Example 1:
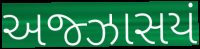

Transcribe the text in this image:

અજ્ઝાસયં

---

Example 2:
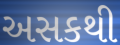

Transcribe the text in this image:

અસકથી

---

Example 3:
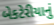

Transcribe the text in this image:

બેકટેરીયાનું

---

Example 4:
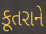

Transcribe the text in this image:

કૂતરાને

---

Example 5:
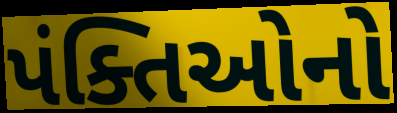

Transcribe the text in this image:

પંક્તિઓનો